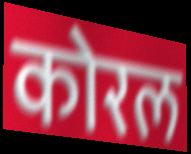
कोरल